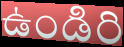
ఉండిరి